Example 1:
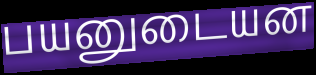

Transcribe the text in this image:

பயனுடையன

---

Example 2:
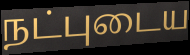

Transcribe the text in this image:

நட்புடைய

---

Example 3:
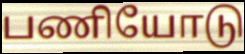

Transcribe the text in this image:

பணியோடு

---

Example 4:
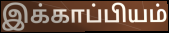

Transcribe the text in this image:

இக்காப்பியம்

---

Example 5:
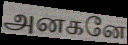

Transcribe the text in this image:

அனகனே